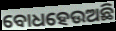
ବୋଧହେଉଅଛି